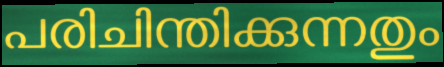
പരിചിന്തിക്കുന്നതും